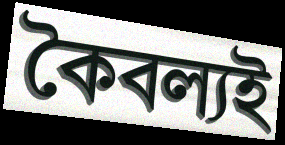
কৈবল্যই